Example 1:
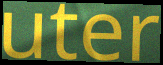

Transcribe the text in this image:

uter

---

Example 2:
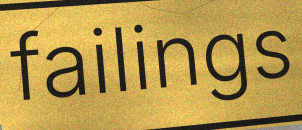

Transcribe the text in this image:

failings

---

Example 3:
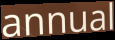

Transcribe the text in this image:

annual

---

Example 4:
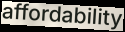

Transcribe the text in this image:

affordability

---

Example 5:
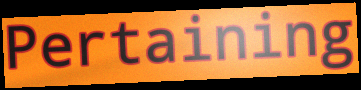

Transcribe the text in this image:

Pertaining